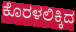
ಕೊರಳಲಿಕ್ಕಿದ